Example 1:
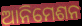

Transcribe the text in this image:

ଆନିମେଶନ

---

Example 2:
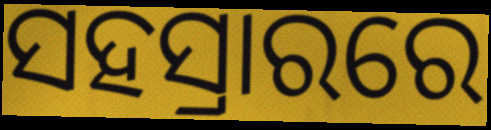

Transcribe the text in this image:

ସହସ୍ରାରରେ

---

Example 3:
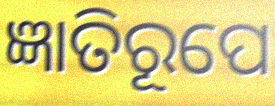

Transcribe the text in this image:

ଜ୍ଞାତିରୂପେ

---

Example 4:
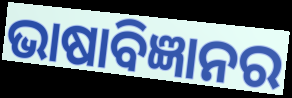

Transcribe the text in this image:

ଭାଷାବିଜ୍ଞାନର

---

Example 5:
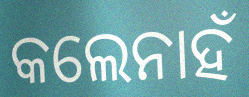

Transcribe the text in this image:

କଲେନାହଁ